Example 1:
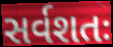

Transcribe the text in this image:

સર્વશતઃ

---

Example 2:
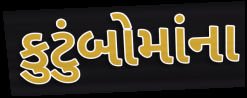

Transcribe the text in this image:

કુટુંબોમાંના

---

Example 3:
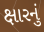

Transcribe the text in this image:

ક્ષારનું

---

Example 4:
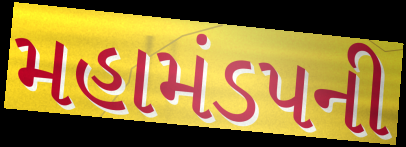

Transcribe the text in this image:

મહામંડપની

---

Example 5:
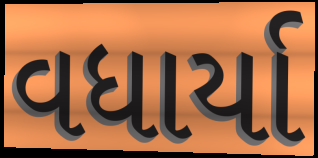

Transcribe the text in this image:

વધાર્યા